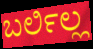
ಬರ್ಲಿಲ್ಲ